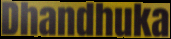
Dhandhuka